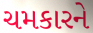
ચમકારને